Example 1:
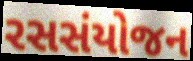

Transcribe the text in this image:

રસસંયોજન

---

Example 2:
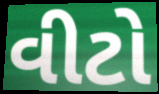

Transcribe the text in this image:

વીટો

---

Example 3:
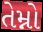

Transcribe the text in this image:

તેમ્નો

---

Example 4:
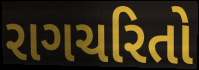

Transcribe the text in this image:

રાગચરિતો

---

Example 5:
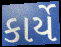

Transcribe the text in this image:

કાર્યે